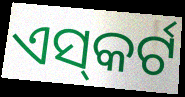
ଏସ୍‌କର୍ଟ